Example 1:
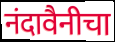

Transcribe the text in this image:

नंदावैनीचा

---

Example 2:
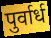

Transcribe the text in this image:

पुर्वार्ध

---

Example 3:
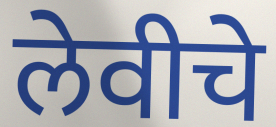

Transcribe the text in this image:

लेवीचे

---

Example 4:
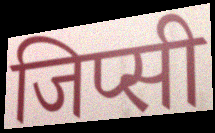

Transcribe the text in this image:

जिप्सी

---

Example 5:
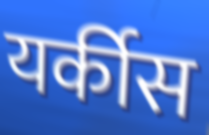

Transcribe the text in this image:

यर्कीस